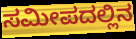
ಸಮೀಪದಲ್ಲಿನ